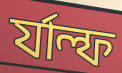
র্যাল্ফ